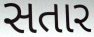
સતાર